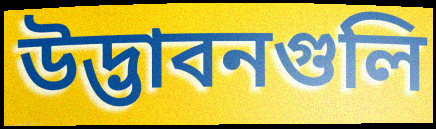
উদ্ভাবনগুলি